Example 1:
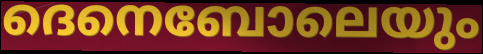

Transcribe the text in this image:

ദെനെബോലെയും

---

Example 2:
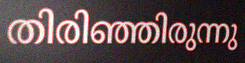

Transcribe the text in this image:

തിരിഞ്ഞിരുന്നു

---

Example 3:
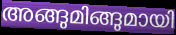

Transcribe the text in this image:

അങ്ങുമിങ്ങുമായി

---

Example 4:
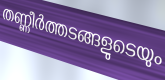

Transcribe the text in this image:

തണ്ണീർത്തടങ്ങളുടെയും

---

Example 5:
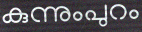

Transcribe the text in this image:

കുന്നുംപുറം